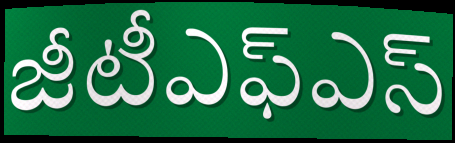
జీటీఎఫ్ఎస్